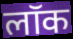
लॉक